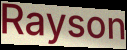
Rayson